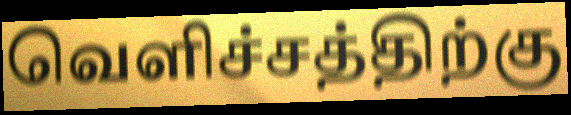
வெளிச்சத்திற்கு